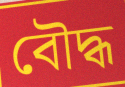
বৌদ্ধ